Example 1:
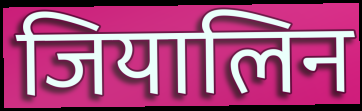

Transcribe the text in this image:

जियालिन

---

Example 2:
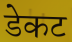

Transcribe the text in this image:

डेकट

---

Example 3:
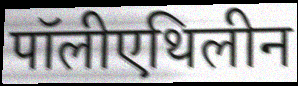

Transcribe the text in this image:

पॉलीएथिलीन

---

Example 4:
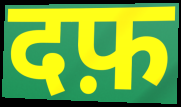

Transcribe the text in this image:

दफ़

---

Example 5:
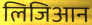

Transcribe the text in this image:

लिजिआन